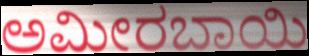
ಅಮೀರಬಾಯಿ